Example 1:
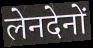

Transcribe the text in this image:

लेनदेनों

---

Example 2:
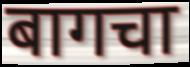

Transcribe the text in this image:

बागचा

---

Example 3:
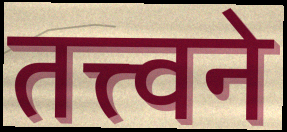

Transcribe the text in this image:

तत्त्वने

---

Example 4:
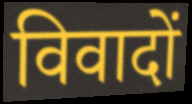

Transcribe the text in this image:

विवादों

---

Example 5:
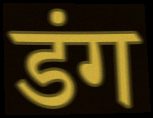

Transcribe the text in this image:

डंग